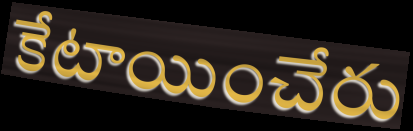
కేటాయించేరు